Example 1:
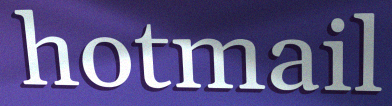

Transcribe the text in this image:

hotmail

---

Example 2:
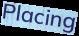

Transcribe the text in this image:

Placing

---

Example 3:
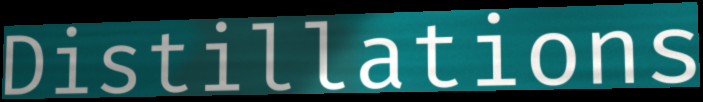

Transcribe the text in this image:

Distillations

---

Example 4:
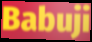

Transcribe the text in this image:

Babuji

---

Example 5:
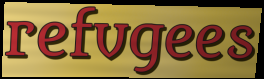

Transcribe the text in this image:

refugees